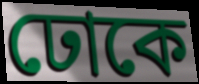
ঢোকে